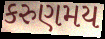
કરુણમય